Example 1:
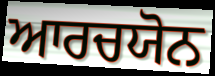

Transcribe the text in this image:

ਆਰਚਯੋਨ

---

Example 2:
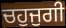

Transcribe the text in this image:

ਚਹੁਜੁਗੀ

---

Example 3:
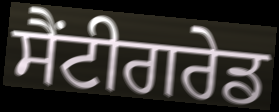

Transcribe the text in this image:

ਸੈਂਟੀਗਰੇਡ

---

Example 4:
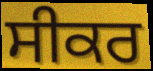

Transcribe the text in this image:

ਸੀਕਰ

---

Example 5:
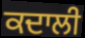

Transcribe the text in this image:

ਕਦਾਲੀ